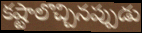
కష్టాలొచ్చినప్పుడు